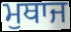
ਮੁਥਾਜ